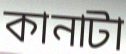
কানাটা